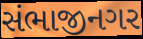
સંભાજીનગર